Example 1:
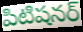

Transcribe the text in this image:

పిటిషనర్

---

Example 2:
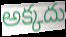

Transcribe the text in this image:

అక్కదు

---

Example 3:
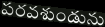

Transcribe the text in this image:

పరవశుండును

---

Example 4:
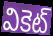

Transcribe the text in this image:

వికెట్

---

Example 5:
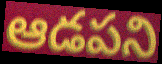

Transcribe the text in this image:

ఆడపని